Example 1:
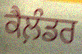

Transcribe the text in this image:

ਕੈਲ਼ੰਡਰ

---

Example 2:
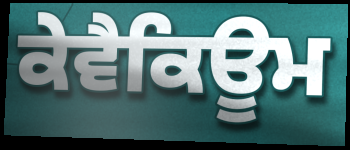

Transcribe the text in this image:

ਕੇਵੈਕਿਊਮ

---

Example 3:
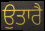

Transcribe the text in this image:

ਉਤਾਰੈ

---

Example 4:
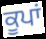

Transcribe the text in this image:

ਕੂਪਾਂ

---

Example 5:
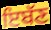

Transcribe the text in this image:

ਇਬੱਣ